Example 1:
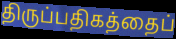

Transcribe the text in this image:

திருப்பதிகத்தைப்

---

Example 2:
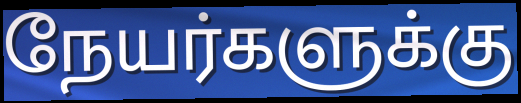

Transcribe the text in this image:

நேயர்களுக்கு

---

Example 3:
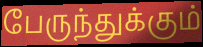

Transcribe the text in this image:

பேருந்துக்கும்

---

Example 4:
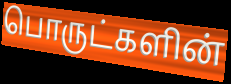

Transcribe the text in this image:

பொருட்களின்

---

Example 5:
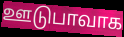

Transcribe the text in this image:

ஊடுபாவாக